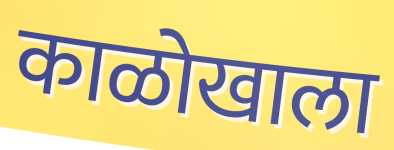
काळोखाला